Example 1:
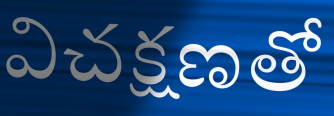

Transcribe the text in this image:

విచక్షణతో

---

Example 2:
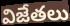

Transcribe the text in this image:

విజేతలు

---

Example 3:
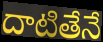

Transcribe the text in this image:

దాటితేనే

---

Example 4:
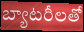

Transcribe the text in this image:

బ్యాటరీలతో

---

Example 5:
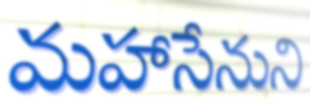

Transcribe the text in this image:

మహాసేనుని